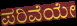
ಪರಿವೆಯೇ